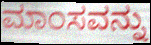
ಮಾಂಸವನ್ನು